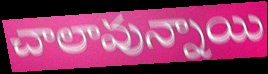
చాలావున్నాయి